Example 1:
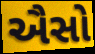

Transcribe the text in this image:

ઐસો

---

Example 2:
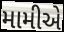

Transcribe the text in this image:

મામીએ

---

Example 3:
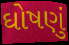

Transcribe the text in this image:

ઘોષણું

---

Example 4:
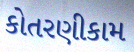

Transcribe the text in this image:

કોતરણીકામ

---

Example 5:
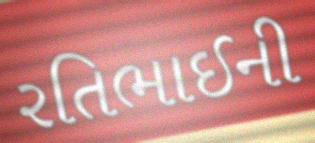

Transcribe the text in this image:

રતિભાઈની